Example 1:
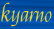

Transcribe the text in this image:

kyarno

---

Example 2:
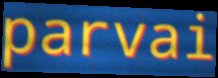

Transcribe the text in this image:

parvai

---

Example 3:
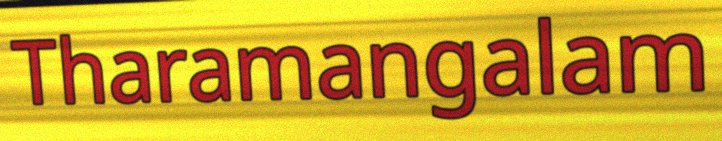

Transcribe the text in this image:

Tharamangalam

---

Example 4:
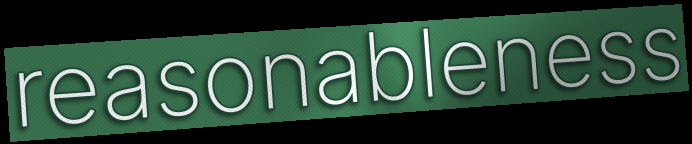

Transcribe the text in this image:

reasonableness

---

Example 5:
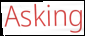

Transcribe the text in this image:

Asking